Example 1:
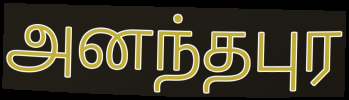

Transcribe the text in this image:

அனந்தபுர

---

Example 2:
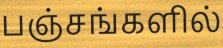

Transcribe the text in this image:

பஞ்சங்களில்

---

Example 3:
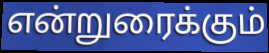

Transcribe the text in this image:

என்றுரைக்கும்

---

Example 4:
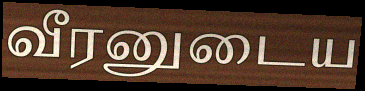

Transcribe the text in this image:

வீரனுடைய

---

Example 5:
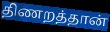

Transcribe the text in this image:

திணறத்தான்